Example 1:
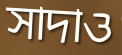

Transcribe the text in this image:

সাদাও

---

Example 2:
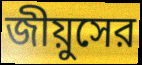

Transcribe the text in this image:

জীয়ুসের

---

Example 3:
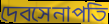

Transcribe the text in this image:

দেবসেনাপতি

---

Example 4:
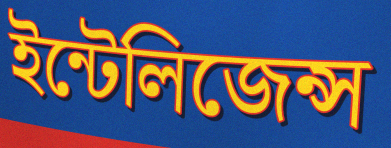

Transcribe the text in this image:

ইন্টেলিজেন্স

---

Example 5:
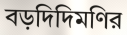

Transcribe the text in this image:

বড়দিদিমণির